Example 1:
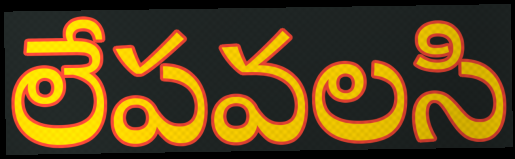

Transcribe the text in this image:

లేపవలసి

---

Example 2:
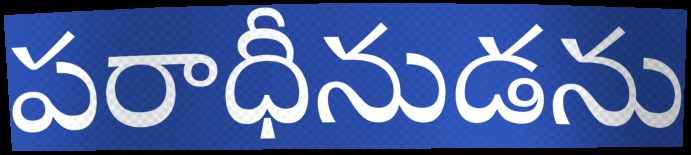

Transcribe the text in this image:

పరాధీనుడను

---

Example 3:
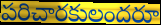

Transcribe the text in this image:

పరిచారకులందరూ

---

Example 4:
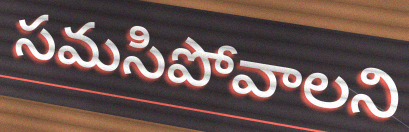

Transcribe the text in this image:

సమసిపోవాలని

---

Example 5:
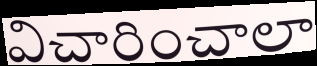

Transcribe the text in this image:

విచారించాలా